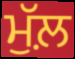
ਮੁੱਲ਼